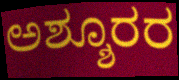
ಅಶ್ಶೂರರ